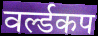
वर्ल्डकप